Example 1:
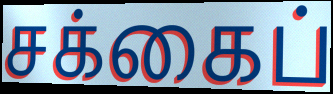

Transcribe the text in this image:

சக்கைப்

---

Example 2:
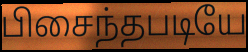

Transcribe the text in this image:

பிசைந்தபடியே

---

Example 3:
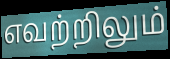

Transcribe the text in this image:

எவற்றிலும்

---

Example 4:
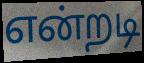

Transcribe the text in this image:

என்றடி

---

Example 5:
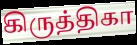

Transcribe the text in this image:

கிருத்திகா